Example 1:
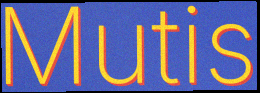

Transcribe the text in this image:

Mutis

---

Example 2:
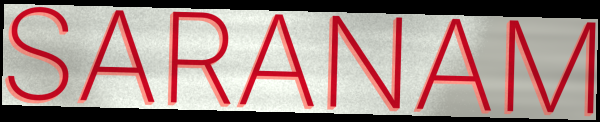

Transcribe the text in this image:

SARANAM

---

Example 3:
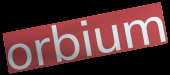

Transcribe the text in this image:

orbium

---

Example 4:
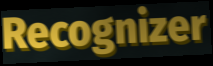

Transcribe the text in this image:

Recognizer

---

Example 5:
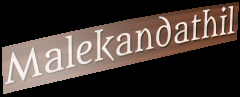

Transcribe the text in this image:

Malekandathil